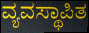
ವ್ಯವಸ್ಥಾಪಿತ